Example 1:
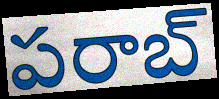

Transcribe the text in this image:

పరాబ్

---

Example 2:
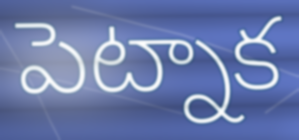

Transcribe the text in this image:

పెట్నాక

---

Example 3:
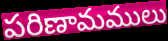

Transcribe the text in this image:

పరిణామములు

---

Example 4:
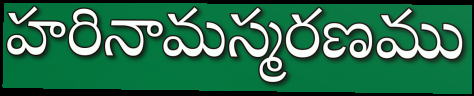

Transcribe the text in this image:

హరినామస్మరణము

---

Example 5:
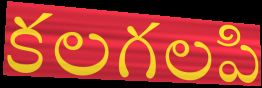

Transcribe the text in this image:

కలగలపి